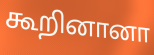
கூறினானா